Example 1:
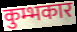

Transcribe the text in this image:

कुम्भकार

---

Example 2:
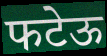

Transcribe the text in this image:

फटेऊ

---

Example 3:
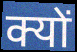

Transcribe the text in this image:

क्यों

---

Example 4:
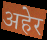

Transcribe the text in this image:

अहेर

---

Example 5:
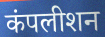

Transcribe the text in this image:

कंपलीशन